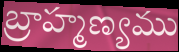
బ్రాహ్మణ్యము